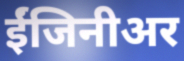
ईंजिनीअर